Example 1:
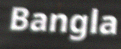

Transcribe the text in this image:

Bangla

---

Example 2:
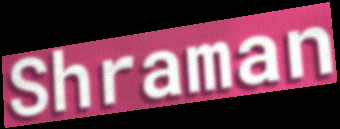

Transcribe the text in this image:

Shraman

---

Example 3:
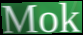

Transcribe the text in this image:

Mok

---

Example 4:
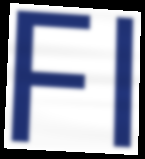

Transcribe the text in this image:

FI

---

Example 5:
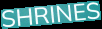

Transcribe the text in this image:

SHRINES